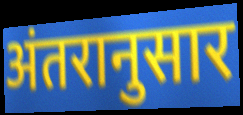
अंतरानुसार